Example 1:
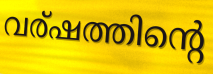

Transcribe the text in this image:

വര്ഷത്തിന്റെ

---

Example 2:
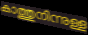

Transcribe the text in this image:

കാത്തുനിന്നുള്ള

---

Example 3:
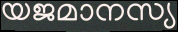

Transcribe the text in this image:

യജമാനസ്യ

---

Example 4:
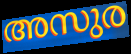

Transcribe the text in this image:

അസുര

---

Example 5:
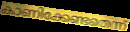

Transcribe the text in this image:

കാണിക്കേണ്ടതെന്ന്